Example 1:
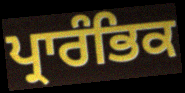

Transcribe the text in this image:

ਪ੍ਰਾਰੰਭਿਕ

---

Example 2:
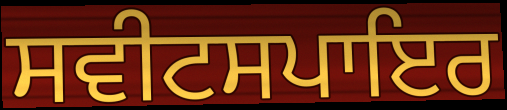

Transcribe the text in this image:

ਸਵੀਟਸਪਾਇਰ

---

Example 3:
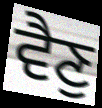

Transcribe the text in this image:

ਵੈਣੁ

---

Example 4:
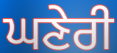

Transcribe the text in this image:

ਘਣੇਰੀ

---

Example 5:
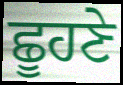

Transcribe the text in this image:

ਛੂਹਣੇ